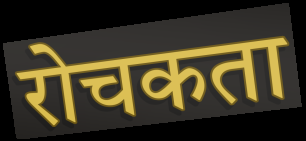
रोचकता